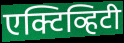
एक्टिव्हिटी